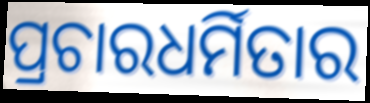
ପ୍ରଚାରଧର୍ମିତାର